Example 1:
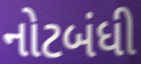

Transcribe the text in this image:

નોટબંધી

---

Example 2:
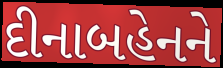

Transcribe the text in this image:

દીનાબહેનને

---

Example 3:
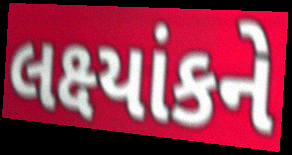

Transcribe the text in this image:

લક્ષ્યાંકને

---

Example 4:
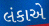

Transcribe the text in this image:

લંકાએ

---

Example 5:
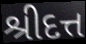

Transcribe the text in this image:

શ્રીદત્ત